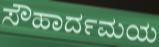
ಸೌಹಾರ್ದಮಯ